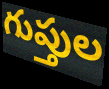
గుప్తుల